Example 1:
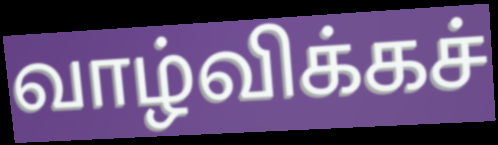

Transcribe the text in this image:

வாழ்விக்கச்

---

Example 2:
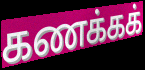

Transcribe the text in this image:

கணக்கக்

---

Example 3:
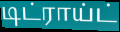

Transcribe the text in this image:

டிட்ராய்ட்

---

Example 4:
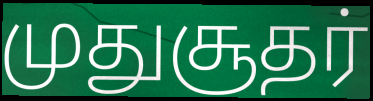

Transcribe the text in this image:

முதுசூதர்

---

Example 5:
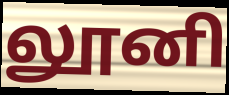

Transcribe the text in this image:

லூனி